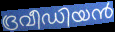
ദ്രവീഡിയൻ